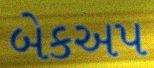
બેકઅપ